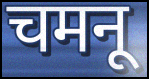
चमनू